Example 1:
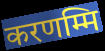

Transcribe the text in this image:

करणम्मि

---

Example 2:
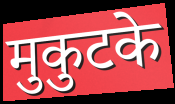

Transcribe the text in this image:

मुकुटके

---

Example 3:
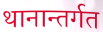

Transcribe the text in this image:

थानान्तर्गत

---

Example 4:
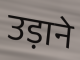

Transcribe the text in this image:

उड़ाने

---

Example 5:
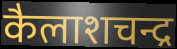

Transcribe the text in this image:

कैलाशचन्द्र